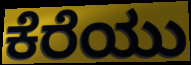
ಕೆರೆಯು